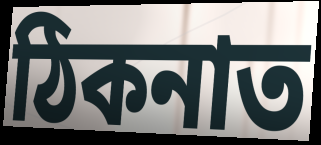
ঠিকনাত